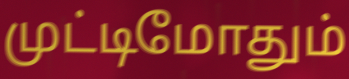
முட்டிமோதும்